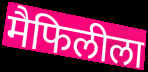
मैफिलीला